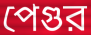
পেগুর